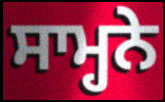
ਸਾਮ੍ਹਨੇ